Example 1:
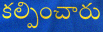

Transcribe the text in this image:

కల్పించారు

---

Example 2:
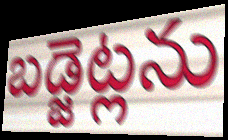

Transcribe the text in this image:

బడ్జెట్లను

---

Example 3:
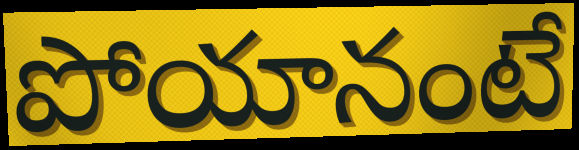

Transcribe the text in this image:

పోయానంటే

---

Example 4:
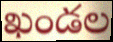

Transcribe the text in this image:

ఖండల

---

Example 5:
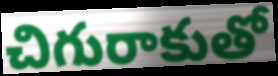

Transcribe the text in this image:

చిగురాకుతో